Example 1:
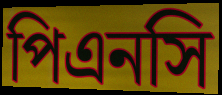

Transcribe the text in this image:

পিএনসি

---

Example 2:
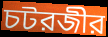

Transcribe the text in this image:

চটরজীর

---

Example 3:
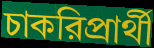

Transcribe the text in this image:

চাকরিপ্রার্থী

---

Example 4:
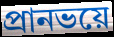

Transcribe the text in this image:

প্রানভয়ে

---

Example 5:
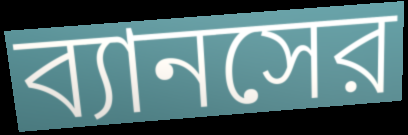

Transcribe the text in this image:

ব্যানসের